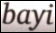
bayi